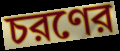
চরণের